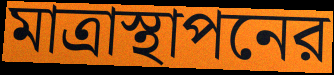
মাত্রাস্থাপনের